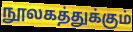
நூலகத்துக்கும்